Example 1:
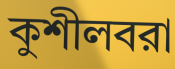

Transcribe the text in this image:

কুশীলবরা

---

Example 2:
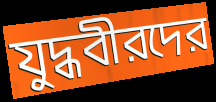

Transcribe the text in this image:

যুদ্ধবীরদের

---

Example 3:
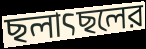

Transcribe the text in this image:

ছলাৎছলের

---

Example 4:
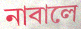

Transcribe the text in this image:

নাবালে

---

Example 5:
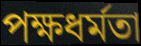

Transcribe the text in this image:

পক্ষধর্মতা